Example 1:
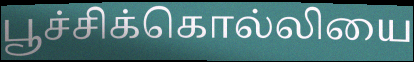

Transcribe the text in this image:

பூச்சிக்கொல்லியை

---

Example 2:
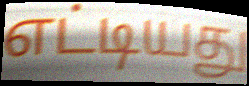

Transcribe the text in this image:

எட்டியது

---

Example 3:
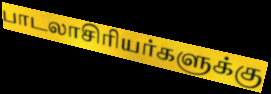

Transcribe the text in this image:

பாடலாசிரியர்களுக்கு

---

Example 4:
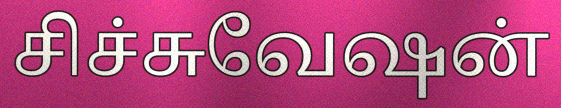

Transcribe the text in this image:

சிச்சுவேஷன்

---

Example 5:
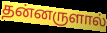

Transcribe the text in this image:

தன்னருளால்